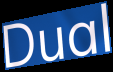
Dual